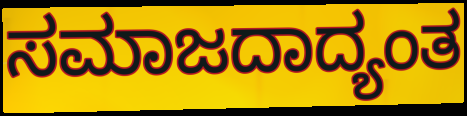
ಸಮಾಜದಾದ್ಯಂತ